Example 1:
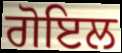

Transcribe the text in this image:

ਗੋਇਲ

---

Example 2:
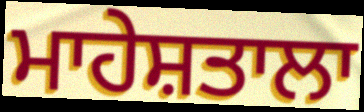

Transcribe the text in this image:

ਮਾਹੇਸ਼ਤਾਲਾ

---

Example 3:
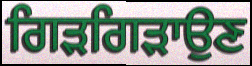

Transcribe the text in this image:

ਗਿੜਗਿੜਾਉਣ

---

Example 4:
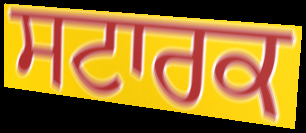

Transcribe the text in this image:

ਸਟਾਰਕ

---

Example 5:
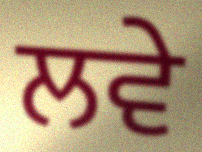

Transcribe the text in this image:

ਲਵੇ